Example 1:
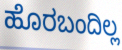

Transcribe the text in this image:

ಹೊರಬಂದಿಲ್ಲ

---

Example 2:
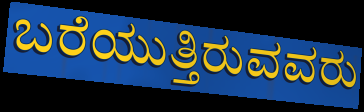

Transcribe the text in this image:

ಬರೆಯುತ್ತಿರುವವರು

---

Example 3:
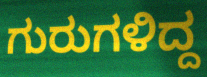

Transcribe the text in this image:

ಗುರುಗಳಿದ್ದ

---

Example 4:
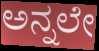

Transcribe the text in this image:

ಅನ್ನಲೇ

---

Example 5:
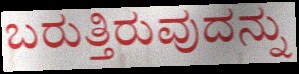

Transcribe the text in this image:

ಬರುತ್ತಿರುವುದನ್ನು